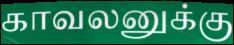
காவலனுக்கு